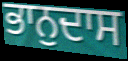
ਭਾਨੁਦਾਸ